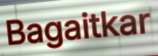
Bagaitkar